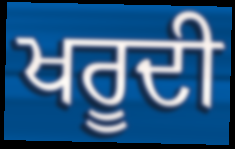
ਖਰੂਦੀ